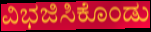
ವಿಭಜಿಸಿಕೊಂಡು